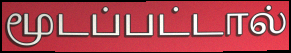
மூடப்பட்டால்